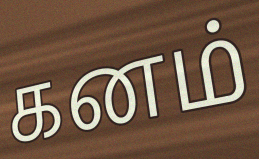
கனம்